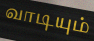
வாடியும்